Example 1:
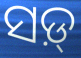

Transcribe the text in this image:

ସଡ଼୍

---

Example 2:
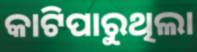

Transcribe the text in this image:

କାଟିପାରୁଥିଲା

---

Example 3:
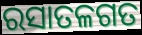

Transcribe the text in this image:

ରସାତଳଗତ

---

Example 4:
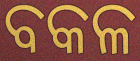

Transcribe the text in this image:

ବକଳ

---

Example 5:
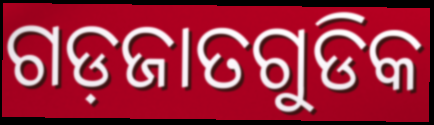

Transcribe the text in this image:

ଗଡ଼ଜାତଗୁଡିକ